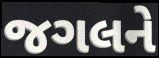
જગલને